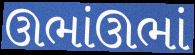
ઊભાંઊભાં